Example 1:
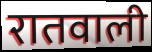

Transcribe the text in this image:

रातवाली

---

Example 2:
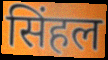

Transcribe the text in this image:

सिंहल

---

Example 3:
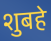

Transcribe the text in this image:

शुबहे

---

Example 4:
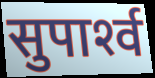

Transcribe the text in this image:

सुपार्श्व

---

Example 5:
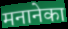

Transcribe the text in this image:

मनानेका